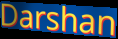
Darshan